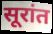
सूरांत